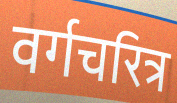
वर्गचरित्र